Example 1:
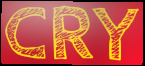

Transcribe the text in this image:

CRY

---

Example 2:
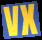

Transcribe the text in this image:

VX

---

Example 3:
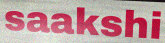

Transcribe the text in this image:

saakshi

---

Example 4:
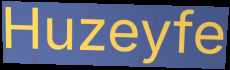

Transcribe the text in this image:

Huzeyfe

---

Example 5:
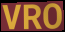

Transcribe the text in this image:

VRO